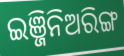
ଇଞ୍ଜିନିଅରିଙ୍ଗ